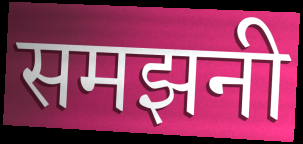
समझनी